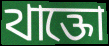
থাক্তো